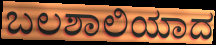
ಬಲಶಾಲಿಯಾದ